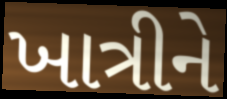
ખાત્રીને